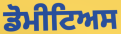
ਡੋਮੀਟਿਅਸ